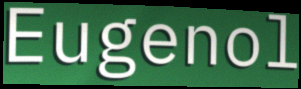
Eugenol